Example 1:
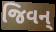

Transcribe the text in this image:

જિવન્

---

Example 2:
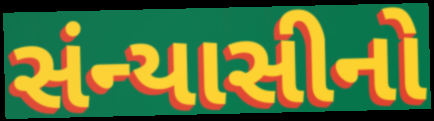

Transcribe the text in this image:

સંન્યાસીનો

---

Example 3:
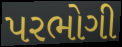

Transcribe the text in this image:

પરભોગી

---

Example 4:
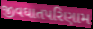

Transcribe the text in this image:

જીવઘાતપરિણામ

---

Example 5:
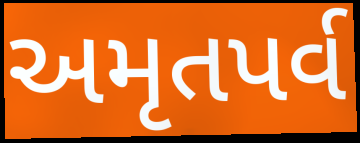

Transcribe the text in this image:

અમૃતપર્વ